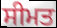
ਸੀਮਤ